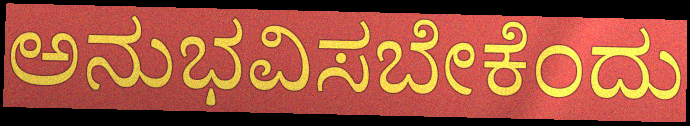
ಅನುಭವಿಸಬೇಕೆಂದು